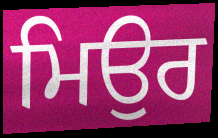
ਮਿਉਰ